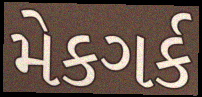
મેકગર્ક